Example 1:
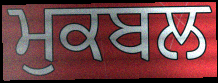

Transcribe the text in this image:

ਮੁਕਬਲ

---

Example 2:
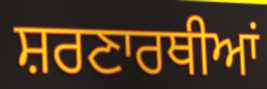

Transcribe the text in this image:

ਸ਼ਰਣਾਰਥੀਆਂ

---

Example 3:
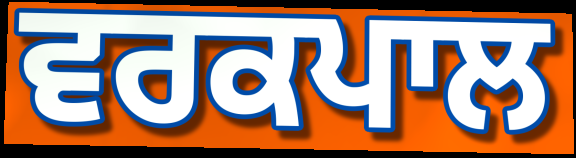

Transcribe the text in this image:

ਵਰਕਪਾਲ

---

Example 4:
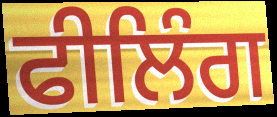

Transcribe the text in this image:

ਫੀਲਿੰਗ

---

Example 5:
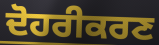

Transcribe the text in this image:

ਦੋਹਰੀਕਰਣ